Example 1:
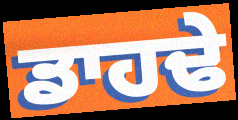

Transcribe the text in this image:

ਡਾਹਢੇ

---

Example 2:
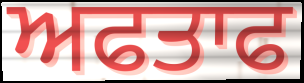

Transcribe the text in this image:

ਅਫਤਾਫ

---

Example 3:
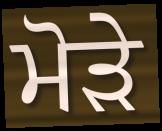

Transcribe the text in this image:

ਮੋੜੇ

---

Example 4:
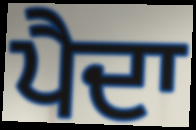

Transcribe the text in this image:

ਪੈਦਾ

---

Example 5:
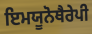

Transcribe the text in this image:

ਇਮਯੂਨੋਥੈਰੇਪੀ